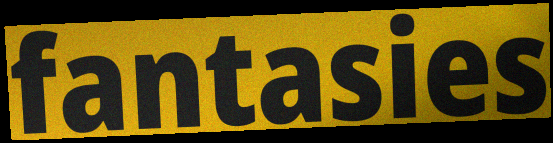
fantasies